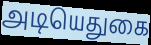
அடியெதுகை